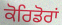
ਕੋਰਿਡੋਰਾਂ